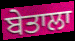
ਬੇਤਾਲਾ